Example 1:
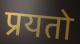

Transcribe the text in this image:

प्रयतो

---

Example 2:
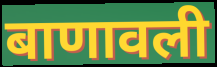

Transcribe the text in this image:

बाणावली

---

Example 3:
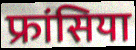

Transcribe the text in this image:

फ्रांसिया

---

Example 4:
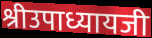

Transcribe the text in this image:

श्रीउपाध्यायजी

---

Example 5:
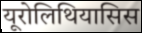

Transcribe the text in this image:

यूरोलिथियासिस